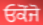
ਓਕੋਂਜੋ